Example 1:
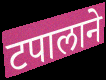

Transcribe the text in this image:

टपालाने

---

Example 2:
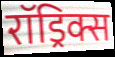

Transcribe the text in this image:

रॉड्रिक्स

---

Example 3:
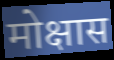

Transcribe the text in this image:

मोक्षास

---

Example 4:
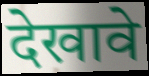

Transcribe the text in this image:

देखावे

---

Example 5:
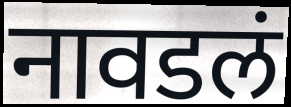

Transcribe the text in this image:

नावडलं